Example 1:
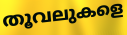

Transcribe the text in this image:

തൂവലുകളെ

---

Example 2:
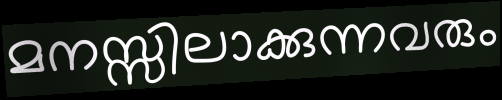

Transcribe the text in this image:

മനസ്സിലാക്കുന്നവരും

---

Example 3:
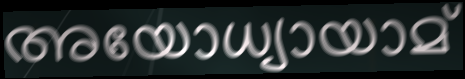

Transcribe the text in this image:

അയോധ്യായാമ്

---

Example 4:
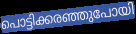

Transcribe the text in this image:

പൊട്ടിക്കരഞ്ഞുപോയി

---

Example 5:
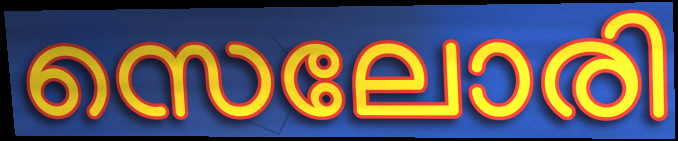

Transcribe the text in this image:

സെലോരി